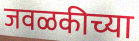
जवळकीच्या